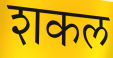
शकल